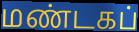
மண்டகப்